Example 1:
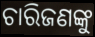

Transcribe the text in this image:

ଚାରିଜଣଙ୍କୁ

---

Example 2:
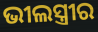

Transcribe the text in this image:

ଭୀଲସ୍ତ୍ରୀର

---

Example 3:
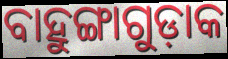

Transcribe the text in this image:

ବାହୁଙ୍ଗାଗୁଡ଼ାକ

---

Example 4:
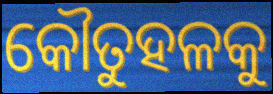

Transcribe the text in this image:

କୌତୁହଳକୁ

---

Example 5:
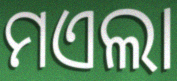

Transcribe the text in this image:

ମଏଲା